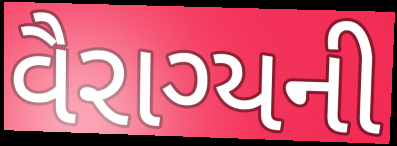
વૈરાગ્યની